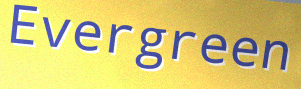
Evergreen